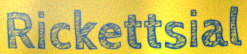
Rickettsial